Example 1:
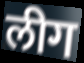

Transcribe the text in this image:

लीग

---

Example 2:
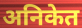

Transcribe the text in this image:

अनिकेत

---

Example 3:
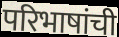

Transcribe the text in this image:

परिभाषांची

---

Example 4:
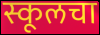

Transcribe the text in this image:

स्कूलचा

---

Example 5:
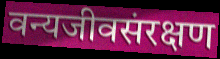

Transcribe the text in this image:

वन्यजीवसंरक्षण